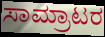
ಸಾಮ್ರಾಟರ